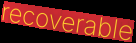
recoverable